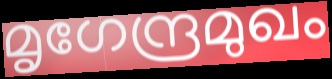
മൃഗേന്ദ്രമുഖം